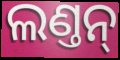
ଲଣ୍ତନ୍